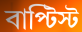
বাপ্টিস্ট